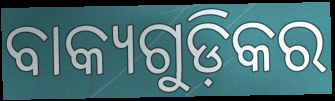
ବାକ୍ୟଗୁଡ଼ିକର